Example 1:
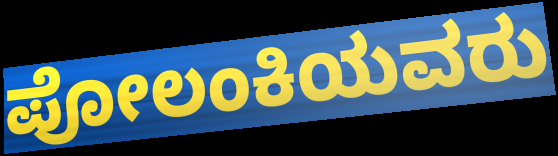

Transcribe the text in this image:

ಪೋಲಂಕಿಯವರು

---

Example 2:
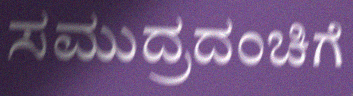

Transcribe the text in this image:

ಸಮುದ್ರದಂಚಿಗೆ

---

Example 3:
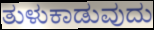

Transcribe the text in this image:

ತುಳುಕಾಡುವುದು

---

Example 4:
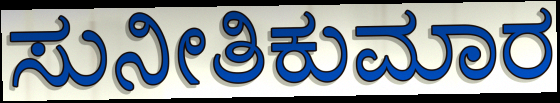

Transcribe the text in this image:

ಸುನೀತಿಕುಮಾರ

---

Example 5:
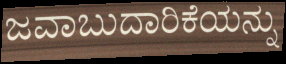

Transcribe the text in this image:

ಜವಾಬುದಾರಿಕೆಯನ್ನು